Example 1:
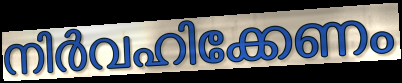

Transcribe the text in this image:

നിർവഹിക്കേണം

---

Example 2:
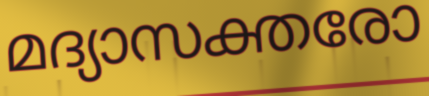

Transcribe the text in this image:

മദ്യാസക്തരോ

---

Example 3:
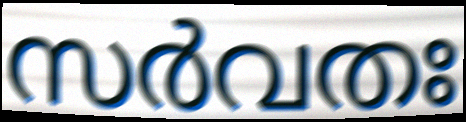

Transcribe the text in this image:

സർവതഃ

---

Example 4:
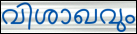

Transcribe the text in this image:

വിശാഖവും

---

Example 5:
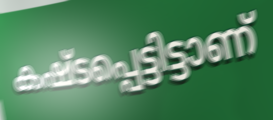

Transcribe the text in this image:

കഷ്ടപ്പെട്ടിട്ടാണ്